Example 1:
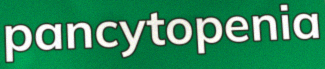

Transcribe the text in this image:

pancytopenia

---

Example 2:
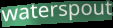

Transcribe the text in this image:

waterspout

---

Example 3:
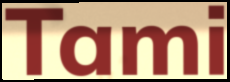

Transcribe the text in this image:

Tami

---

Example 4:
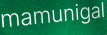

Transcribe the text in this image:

mamunigal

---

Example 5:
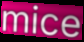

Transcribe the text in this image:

mice